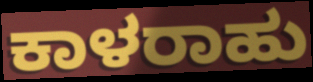
ಕಾಳರಾಹು